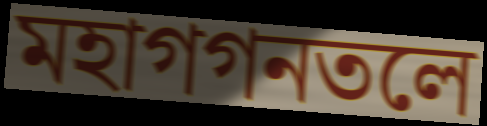
মহাগগনতলে